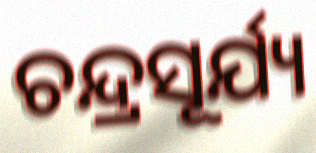
ଚନ୍ଦ୍ରସୂର୍ଯ୍ୟ